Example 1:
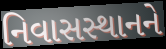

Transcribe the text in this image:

નિવાસસ્થાનને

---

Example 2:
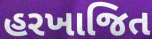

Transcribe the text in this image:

હરખાજિત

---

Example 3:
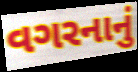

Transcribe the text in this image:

વગરનાનું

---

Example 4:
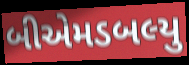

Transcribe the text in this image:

બીએમડબલ્યુ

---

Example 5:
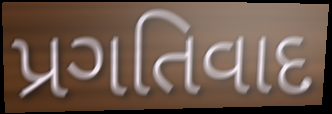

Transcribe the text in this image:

પ્રગતિવાદ